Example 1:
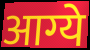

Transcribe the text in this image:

आग्ये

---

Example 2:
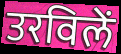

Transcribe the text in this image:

उरविलें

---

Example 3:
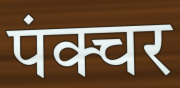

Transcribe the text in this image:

पंक्चर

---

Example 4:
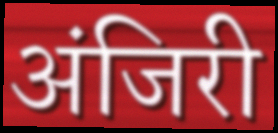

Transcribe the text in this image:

अंजिरी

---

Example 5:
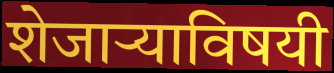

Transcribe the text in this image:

शेजाऱ्याविषयी